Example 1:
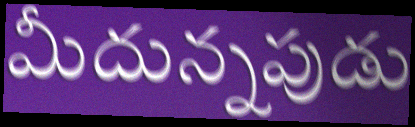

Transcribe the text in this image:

మీదున్నపుడు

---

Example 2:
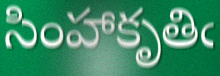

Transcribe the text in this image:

సింహాకృతిఁ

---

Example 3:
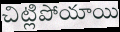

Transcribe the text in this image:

చిట్లిపోయాయి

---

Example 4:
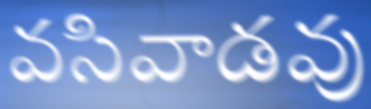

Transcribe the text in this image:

వసివాడవు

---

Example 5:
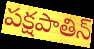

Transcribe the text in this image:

పక్షపాతిన్